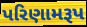
પરિણામરૂપ